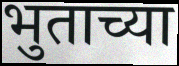
भुताच्या